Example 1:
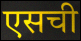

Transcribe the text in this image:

एसची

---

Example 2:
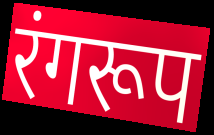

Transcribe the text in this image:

रंगरूप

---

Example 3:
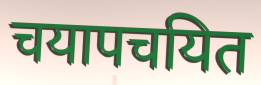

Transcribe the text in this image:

चयापचयित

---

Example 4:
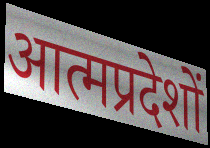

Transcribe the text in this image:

आत्मप्रदेशों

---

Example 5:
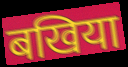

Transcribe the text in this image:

बखिया